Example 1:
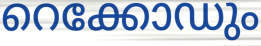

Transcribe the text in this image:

റെക്കോഡും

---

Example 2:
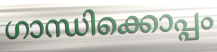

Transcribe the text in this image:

ഗാന്ധിക്കൊപ്പം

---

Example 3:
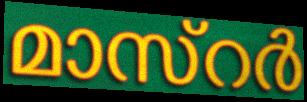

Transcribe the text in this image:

മാസ്റർ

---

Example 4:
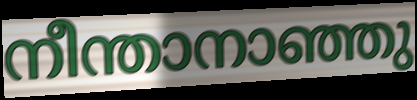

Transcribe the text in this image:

നീന്താനാഞ്ഞു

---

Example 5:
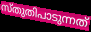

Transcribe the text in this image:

സ്തുതിപാടുന്നത്